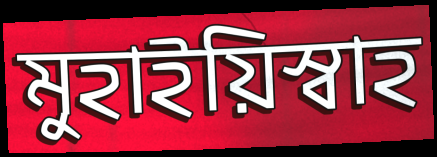
মুহাইয়িস্বাহ